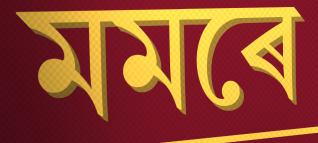
মমৰে